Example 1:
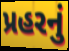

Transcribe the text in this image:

પ્રહરનું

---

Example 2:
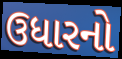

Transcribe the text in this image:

ઉધારનો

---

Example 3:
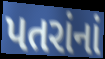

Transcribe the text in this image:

પતરાંનાં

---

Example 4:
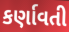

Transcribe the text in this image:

કર્ણાવતી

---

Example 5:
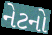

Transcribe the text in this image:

નેટનો